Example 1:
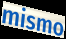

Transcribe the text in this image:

mismo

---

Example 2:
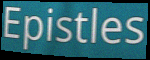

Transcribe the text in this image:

Epistles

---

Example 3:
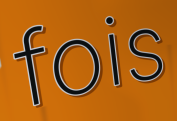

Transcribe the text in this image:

fois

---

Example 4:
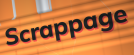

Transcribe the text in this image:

Scrappage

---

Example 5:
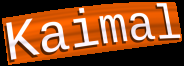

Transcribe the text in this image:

Kaimal